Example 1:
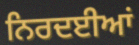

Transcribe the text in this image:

ਨਿਰਦਈਆਂ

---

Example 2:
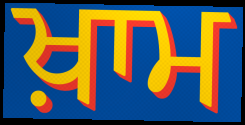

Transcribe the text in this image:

ਖ਼ਾਮ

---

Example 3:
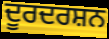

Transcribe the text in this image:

ਦੂਰਦਰਸ਼ਨ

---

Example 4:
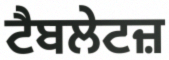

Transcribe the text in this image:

ਟੈਬਲੇਟਜ਼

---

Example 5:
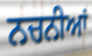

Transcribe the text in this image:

ਨਚਨੀਆਂ